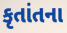
કૃતાંતના